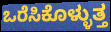
ಒರೆಸಿಕೊಳ್ಳುತ್ತ